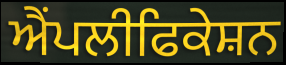
ਐਂਪਲੀਫਿਕੇਸ਼ਨ